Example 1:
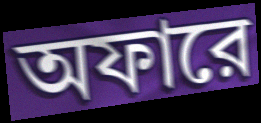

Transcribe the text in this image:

অফারে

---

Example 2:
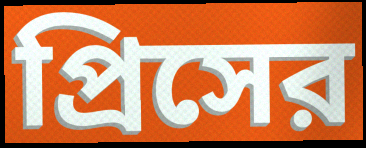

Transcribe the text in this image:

প্রিসের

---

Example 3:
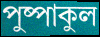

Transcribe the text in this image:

পুষ্পাকুল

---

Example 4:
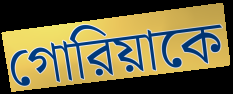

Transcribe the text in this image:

গোরিয়াকে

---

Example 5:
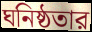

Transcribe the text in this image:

ঘনিষ্ঠতার